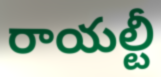
రాయల్టీ